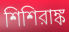
শিশিরাঙ্ক